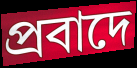
প্রবাদে